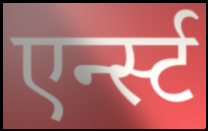
एर्न्स्ट